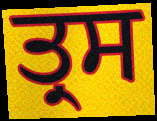
ਤ੍ਰਸ